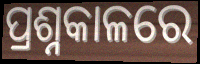
ପ୍ରଶ୍ନକାଳରେ